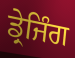
ਡ੍ਰੇਜਿੰਗ